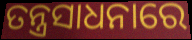
ତନ୍ତ୍ରସାଧନାରେ